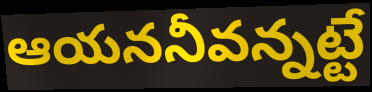
ఆయననీవన్నట్టే